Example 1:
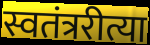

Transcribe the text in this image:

स्वतंत्ररीत्या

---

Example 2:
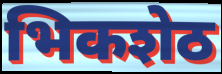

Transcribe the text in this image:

भिकशेठ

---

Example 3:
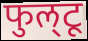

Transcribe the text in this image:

फुल्टू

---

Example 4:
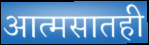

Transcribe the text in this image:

आत्मसातही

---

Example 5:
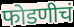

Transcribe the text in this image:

फोडणीचं